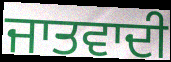
ਜਾਤਵਾਦੀ